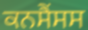
ਕਨਸੈਂਸਸ